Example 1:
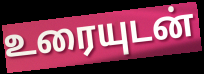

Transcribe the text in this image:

உரையுடன்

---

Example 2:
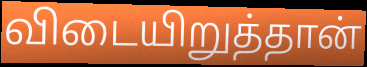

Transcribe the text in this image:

விடையிறுத்தான்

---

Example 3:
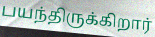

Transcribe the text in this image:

பயந்திருக்கிறார்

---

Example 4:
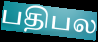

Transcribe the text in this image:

பதிபல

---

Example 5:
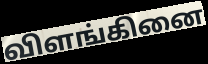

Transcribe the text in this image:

விளங்கினை